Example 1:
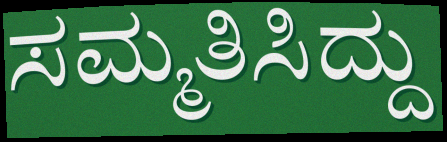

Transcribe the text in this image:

ಸಮ್ಮತಿಸಿದ್ದು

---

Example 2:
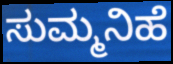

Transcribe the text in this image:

ಸುಮ್ಮನಿಹೆ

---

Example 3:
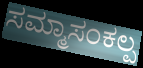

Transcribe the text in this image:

ಸಮ್ಮಾಸಂಕಲ್ಪ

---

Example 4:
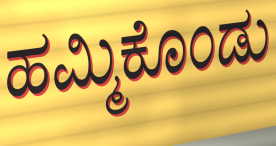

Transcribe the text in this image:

ಹಮ್ಮಿಕೊಂಡು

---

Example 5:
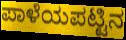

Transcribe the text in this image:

ಪಾಳೆಯಪಟ್ಟಿನ